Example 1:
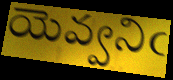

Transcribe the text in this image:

యెవ్వనిఁ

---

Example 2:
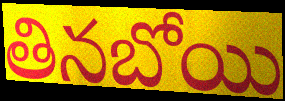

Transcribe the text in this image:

తినబోయి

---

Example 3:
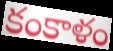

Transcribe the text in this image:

కంకాళం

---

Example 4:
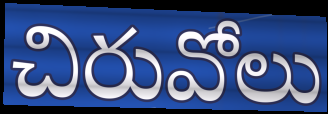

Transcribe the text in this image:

చిరువోలు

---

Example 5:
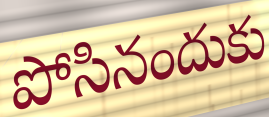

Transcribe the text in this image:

పోసినందుకు